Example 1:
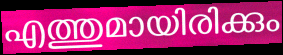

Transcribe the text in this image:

എത്തുമായിരിക്കും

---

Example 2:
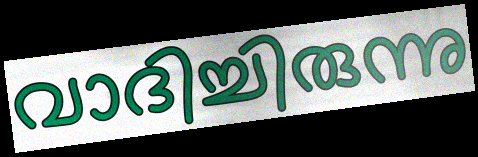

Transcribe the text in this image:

വാദിച്ചിരുന്നു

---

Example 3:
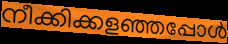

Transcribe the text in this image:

നീക്കിക്കളഞ്ഞപ്പോൾ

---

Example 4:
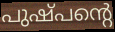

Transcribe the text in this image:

പുഷ്പന്റെ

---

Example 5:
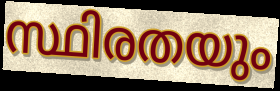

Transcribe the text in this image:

സ്ഥിരതയും